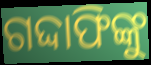
ଗଦ୍ଦାଫିଙ୍କୁ